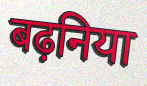
बढ़निया